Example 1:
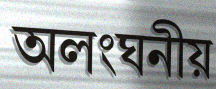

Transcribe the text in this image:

অলংঘনীয়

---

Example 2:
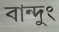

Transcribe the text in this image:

বান্দুং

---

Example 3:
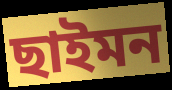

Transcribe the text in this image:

ছাইমন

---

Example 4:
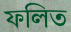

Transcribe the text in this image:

ফলিত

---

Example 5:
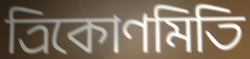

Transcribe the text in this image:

ত্ৰিকোণমিতি